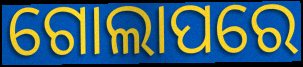
ଗୋଲାପରେ